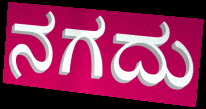
ನಗದು